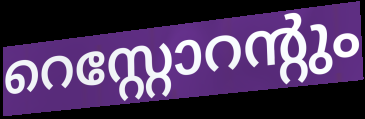
റെസ്റ്റോറന്റും